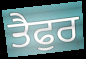
ਤੈਫੁਰ